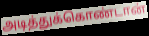
அடித்துக்கொண்டான்